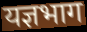
यज्ञभाग